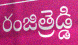
రంజిత్రెడ్డి